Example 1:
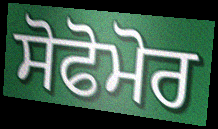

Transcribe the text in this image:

ਸੋਫੋਮੋਰ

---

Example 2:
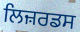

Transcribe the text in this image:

ਲਿਜ਼ਰਡਸ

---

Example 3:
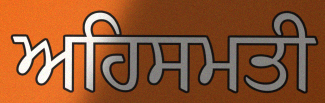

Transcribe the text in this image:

ਅਹਿਸਮਤੀ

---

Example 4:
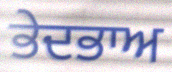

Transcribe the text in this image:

ਭੇਦਭਾਅ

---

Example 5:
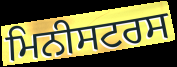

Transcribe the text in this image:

ਮਿਨੀਸਟਰਸ